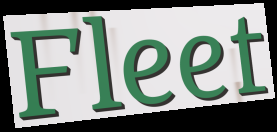
Fleet